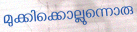
മുക്കിക്കൊല്ലുന്നൊരു